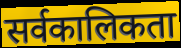
सर्वकालिकता